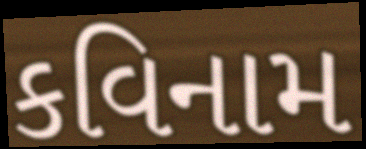
કવિનામ